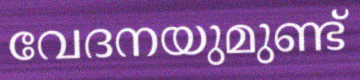
വേദനയുമുണ്ട്